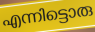
എന്നിട്ടൊരു